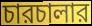
চারচালার